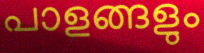
പാളങ്ങളും